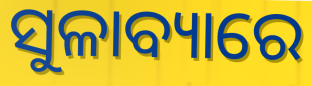
ସୁଳାବ୍ୟାରେ